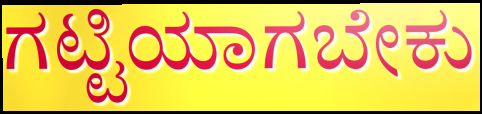
ಗಟ್ಟಿಯಾಗಬೇಕು